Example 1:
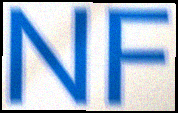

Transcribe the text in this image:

NF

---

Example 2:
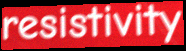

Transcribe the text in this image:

resistivity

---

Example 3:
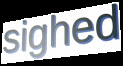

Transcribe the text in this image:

sighed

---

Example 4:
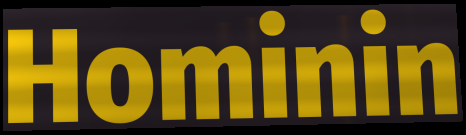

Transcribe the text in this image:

Hominin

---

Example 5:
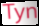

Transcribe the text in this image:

Tyn